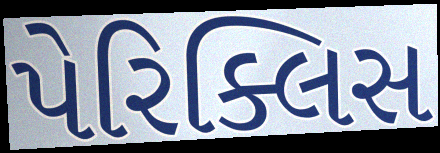
પેરિક્લિસ